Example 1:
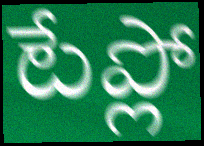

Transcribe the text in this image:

టేప్లో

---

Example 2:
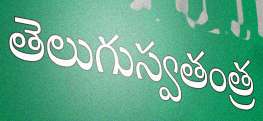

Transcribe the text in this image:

తెలుగుస్వతంత్ర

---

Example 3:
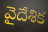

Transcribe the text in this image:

వైదేశిక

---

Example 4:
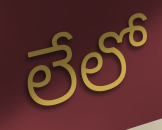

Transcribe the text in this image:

లేలో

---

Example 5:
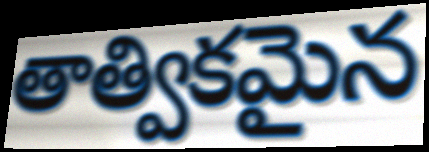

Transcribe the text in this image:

తాత్వికమైన